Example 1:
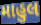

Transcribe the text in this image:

માહુલ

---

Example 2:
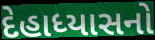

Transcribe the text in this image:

દેહાધ્યાસનો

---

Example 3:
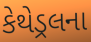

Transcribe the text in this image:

કેથેડ્રલના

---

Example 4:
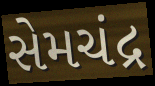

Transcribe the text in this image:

સેમચંદ્ર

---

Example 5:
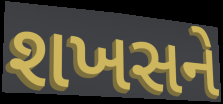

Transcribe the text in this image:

શખસને